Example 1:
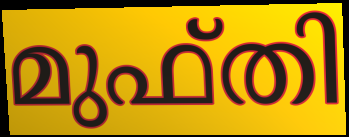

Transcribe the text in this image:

മുഫ്തി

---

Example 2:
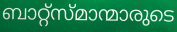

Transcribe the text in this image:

ബാറ്റ്സ്മാന്മാരുടെ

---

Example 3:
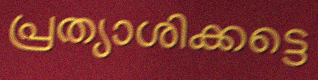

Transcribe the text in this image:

പ്രത്യാശിക്കട്ടെ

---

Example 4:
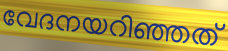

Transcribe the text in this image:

വേദനയറിഞ്ഞത്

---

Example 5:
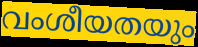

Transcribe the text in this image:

വംശീയതയും